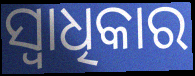
ସ୍ଵାଧିକାର